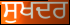
ਸੁਖਦਰ